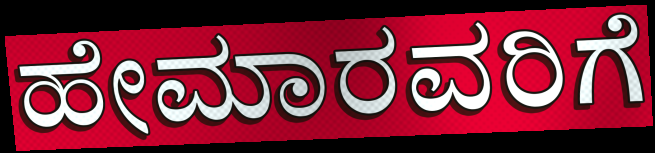
ಹೇಮಾರವರಿಗೆ